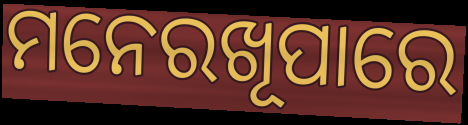
ମନେରଖୂପାରେ